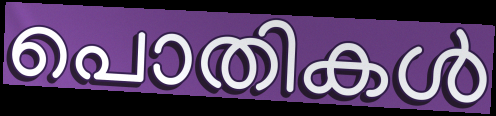
പൊതികൾ